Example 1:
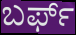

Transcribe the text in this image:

ಬರ್ಫ್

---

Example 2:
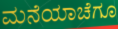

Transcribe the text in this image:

ಮನೆಯಾಚೆಗೂ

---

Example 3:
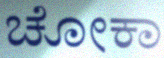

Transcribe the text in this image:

ಚೋಕಾ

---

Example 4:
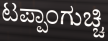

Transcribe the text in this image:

ಟಪ್ಪಾಂಗುಚ್ಚಿ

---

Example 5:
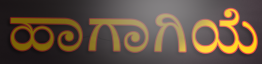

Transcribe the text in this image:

ಹಾಗಾಗಿಯೆ